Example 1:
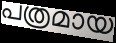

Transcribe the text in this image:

പത്രമായ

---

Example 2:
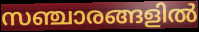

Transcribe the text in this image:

സഞ്ചാരങ്ങളിൽ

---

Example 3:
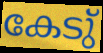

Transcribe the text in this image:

കേടു്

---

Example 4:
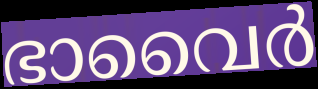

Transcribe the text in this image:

ഭാവൈർ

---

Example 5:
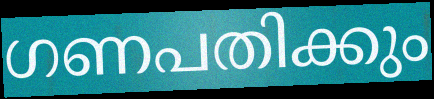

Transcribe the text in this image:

ഗണപതിക്കും